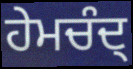
ਹੇਮਚੰਦ੍